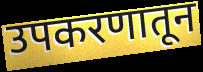
उपकरणातून